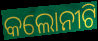
କଲୋନୀଟି